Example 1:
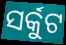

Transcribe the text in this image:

ସର୍କୁଟ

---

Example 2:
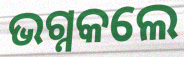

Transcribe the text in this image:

ଭଗ୍ନକଲେ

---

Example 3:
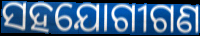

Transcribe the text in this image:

ସହଯୋଗୀଗଣ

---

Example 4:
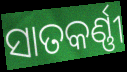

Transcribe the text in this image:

ସାତକର୍ଣ୍ଣୀ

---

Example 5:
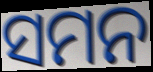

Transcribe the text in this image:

ସମନ